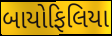
બાયોફિલિયા